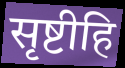
सृष्टीहि